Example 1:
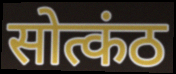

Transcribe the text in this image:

सोत्कंठ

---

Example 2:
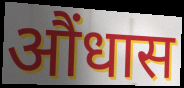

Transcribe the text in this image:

औंधास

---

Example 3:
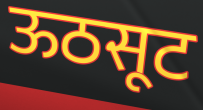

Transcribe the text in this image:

ऊठसूट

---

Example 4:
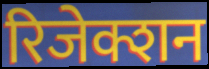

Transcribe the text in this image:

रिजेक्शन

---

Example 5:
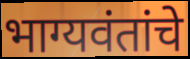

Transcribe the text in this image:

भाग्यवंतांचे